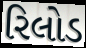
રિલોડ